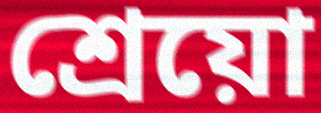
শ্রেয়ো